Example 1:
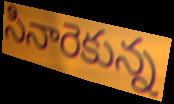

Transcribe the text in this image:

సినారెకున్న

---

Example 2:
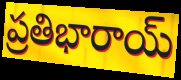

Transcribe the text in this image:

ప్రతిభారాయ్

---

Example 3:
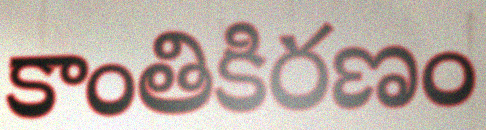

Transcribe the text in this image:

కాంతికిరణం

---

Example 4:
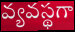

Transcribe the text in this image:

వ్యవస్థగా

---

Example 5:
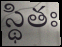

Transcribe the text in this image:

స్థితః